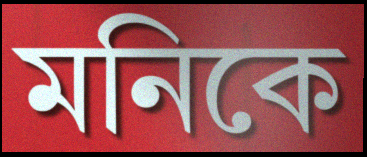
মনিকে